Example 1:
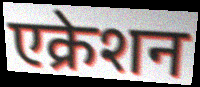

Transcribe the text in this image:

एक्रेशन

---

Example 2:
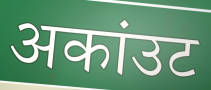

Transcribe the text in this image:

अकांउट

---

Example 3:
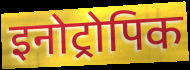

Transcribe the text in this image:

इनोट्रोपिक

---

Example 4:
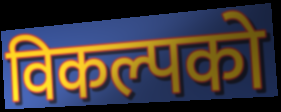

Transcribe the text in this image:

विकल्पको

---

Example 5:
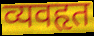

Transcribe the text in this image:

व्यवहृत